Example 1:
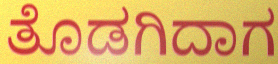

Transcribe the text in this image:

ತೊಡಗಿದಾಗ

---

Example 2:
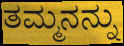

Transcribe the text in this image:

ತಮ್ಮನನ್ನು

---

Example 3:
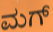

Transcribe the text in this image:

ಮಗ್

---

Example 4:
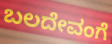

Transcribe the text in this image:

ಬಲದೇವಂಗೆ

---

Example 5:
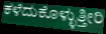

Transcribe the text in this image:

ಕಳೆದುಕೊಳ್ಳುತ್ತೀರಿ